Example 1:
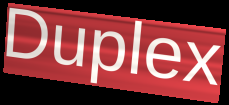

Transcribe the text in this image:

Duplex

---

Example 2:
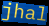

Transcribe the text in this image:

jhal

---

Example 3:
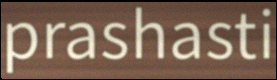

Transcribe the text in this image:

prashasti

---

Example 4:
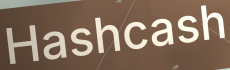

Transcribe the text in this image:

Hashcash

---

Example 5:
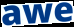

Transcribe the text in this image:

awe